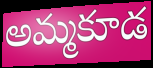
అమ్మకూడ